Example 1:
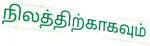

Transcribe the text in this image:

நிலத்திற்காகவும்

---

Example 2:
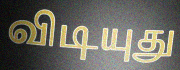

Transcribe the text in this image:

விடியுது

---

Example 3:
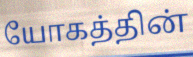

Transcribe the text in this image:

யோகத்தின்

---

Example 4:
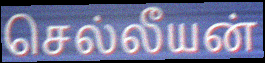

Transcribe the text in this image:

செல்லீயன்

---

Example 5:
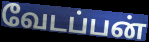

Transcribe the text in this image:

வேடப்பன்